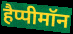
हैप्पीमॉन